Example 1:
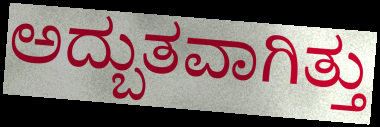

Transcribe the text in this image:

ಅದ್ಬುತವಾಗಿತ್ತು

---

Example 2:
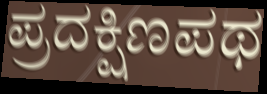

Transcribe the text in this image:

ಪ್ರದಕ್ಷಿಣಪಥ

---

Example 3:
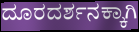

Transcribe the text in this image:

ದೂರದರ್ಶನಕ್ಕಾಗಿ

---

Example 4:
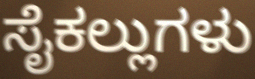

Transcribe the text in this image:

ಸೈಕಲ್ಲುಗಳು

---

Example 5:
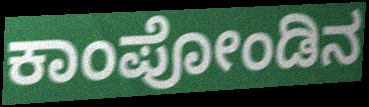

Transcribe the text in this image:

ಕಾಂಪೋಂಡಿನ